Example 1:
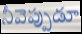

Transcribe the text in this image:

నీవెప్పుడూ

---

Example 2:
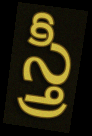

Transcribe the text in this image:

స్త్రీ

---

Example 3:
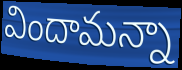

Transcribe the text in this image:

విందామన్నా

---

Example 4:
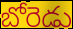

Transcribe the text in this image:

బోరెడు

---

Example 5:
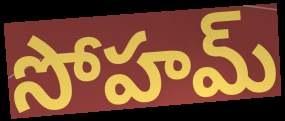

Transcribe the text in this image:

సోహమ్